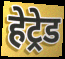
हेट्रेड